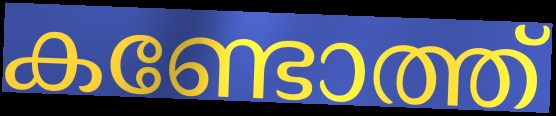
കണ്ടോത്ത്